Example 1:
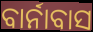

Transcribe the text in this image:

ବାର୍ନାବାସ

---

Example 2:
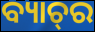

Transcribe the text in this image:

ବ୍ୟାଚ୍‌ର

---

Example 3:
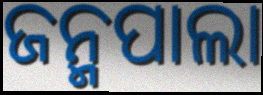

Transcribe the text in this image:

ଜନ୍ମପାଲା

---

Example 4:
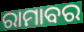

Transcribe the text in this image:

ରାମାବର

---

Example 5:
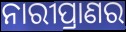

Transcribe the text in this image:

ନାରୀପ୍ରାଣର